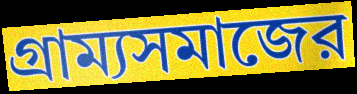
গ্রাম্যসমাজের